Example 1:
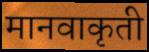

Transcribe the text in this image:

मानवाकृती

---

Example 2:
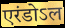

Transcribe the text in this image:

एरंडोऽल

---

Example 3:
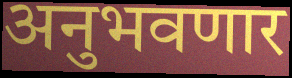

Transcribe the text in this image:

अनुभवणार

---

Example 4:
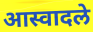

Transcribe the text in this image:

आस्वादले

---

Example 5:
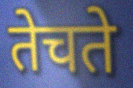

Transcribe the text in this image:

तेचते